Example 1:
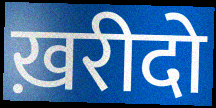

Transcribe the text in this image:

ख़रीदो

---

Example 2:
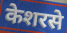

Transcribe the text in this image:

केशरसे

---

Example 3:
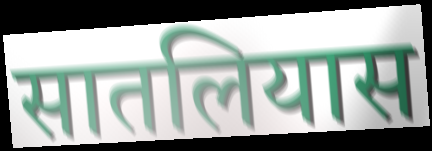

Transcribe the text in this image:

सातलियास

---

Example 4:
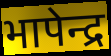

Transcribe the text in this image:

भापेन्द्र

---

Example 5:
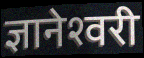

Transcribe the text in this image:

ज्ञानेश्वरी